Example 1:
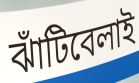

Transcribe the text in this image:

ঝাঁটিবেলাই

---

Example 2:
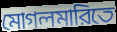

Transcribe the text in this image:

মোগলমারিতে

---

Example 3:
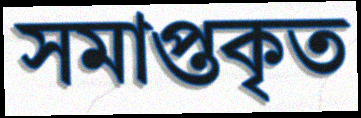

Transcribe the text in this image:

সমাপ্তকৃত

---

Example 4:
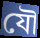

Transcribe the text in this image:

যৌ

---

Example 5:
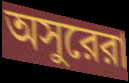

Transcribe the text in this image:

অসুরেরা